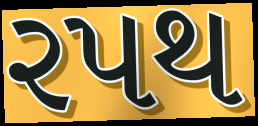
રપથ